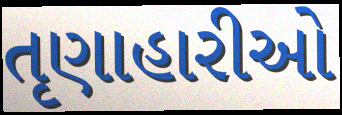
તૃણાહારીઓ